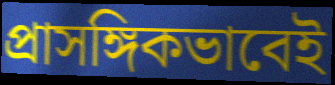
প্রাসঙ্গিকভাবেই